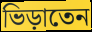
ভিড়াতেন